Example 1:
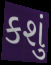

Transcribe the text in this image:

કશું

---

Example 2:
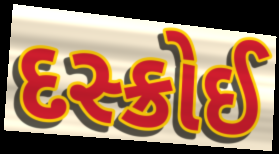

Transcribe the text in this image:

દસ્ક્રોઈ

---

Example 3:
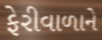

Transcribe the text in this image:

ફેરીવાળાને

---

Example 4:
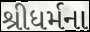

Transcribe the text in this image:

શ્રીધર્મના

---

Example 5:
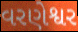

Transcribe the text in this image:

વરણેશ્વર